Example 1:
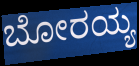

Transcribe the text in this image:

ಬೋರಯ್ಯ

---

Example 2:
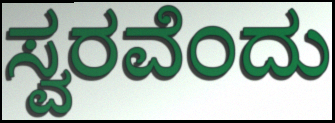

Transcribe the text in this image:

ಸ್ವರವೆಂದು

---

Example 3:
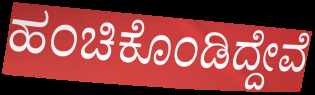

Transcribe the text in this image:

ಹಂಚಿಕೊಂಡಿದ್ದೇವೆ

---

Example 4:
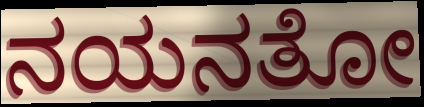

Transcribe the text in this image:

ನಯನತೋ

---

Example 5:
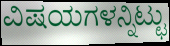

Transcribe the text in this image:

ವಿಷಯಗಳನ್ನಿಟ್ಟು